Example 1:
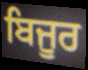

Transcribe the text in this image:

ਬਿਜੂਰ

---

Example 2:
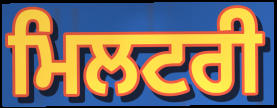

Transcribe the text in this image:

ਮਿਲਟਰੀ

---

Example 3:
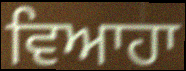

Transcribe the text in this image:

ਵਿਆਹਾ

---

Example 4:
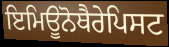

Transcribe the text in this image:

ਇਮਿਊਨੋਥੈਰੇਪਿਸਟ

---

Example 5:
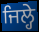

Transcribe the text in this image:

ਜਿਲ੍ਹੇ